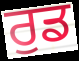
ਰੁਡ